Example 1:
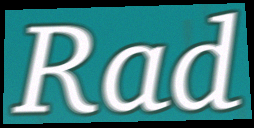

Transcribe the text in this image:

Rad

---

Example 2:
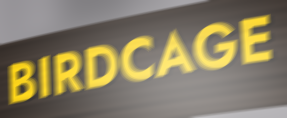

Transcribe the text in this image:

BIRDCAGE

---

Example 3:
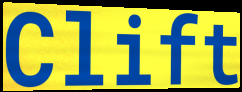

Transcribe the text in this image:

Clift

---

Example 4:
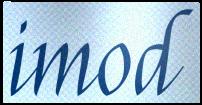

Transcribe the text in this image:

imod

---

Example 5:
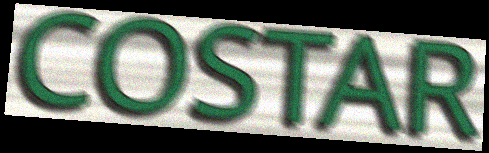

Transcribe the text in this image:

COSTAR